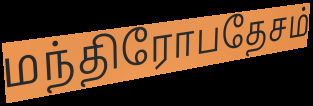
மந்திரோபதேசம்